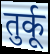
तुर्कू